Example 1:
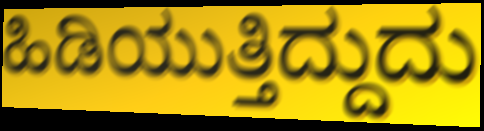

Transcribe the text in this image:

ಹಿಡಿಯುತ್ತಿದ್ದುದು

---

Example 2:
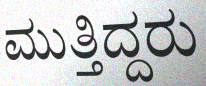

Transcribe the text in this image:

ಮುತ್ತಿದ್ದರು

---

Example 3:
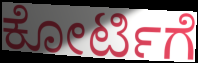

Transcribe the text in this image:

ಕೋರ್ಟಿಗೆ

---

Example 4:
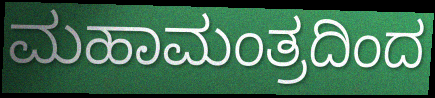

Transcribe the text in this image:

ಮಹಾಮಂತ್ರದಿಂದ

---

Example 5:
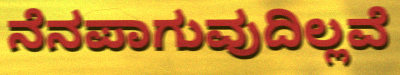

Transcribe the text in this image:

ನೆನಪಾಗುವುದಿಲ್ಲವೆ